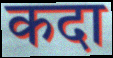
कदा